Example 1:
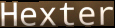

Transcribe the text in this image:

Hexter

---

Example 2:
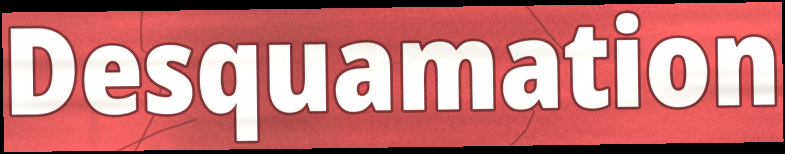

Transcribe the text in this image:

Desquamation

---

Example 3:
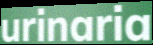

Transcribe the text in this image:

urinaria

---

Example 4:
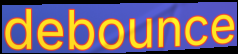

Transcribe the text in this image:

debounce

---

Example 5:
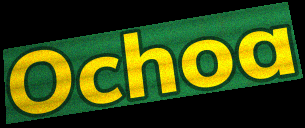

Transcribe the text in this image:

Ochoa